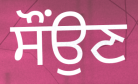
ਸੌਂਉਣ